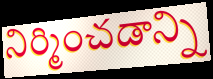
నిర్మించడాన్ని